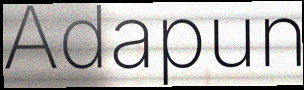
Adapun